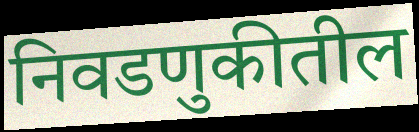
निवडणुकीतील